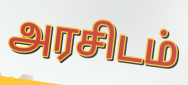
அரசிடம்